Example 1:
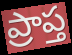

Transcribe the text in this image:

ప్రాప్త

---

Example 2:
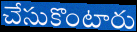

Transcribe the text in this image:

చేసుకొంటారు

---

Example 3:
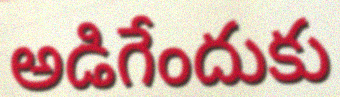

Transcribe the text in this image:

అడిగేందుకు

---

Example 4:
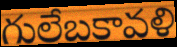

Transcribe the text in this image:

గులేబకావళి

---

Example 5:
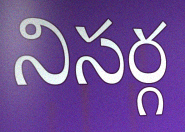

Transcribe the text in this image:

నిసర్గ